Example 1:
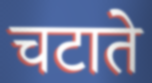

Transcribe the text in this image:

चटाते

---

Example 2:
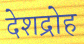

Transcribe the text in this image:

देशद्रोह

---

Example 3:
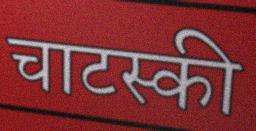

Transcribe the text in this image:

चाटस्की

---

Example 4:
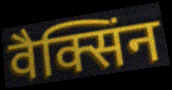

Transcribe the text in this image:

वैक्सिंन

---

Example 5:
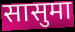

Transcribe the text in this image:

सासुमा